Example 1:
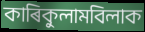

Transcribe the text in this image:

কাৰিকুলামবিলাক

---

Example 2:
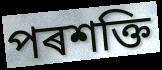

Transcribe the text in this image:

পৰশক্তি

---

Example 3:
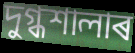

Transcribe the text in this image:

দুগ্ধশালাৰ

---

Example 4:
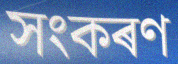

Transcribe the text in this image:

সংকৰণ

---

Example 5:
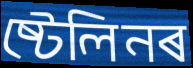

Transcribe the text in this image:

ষ্টেলিনৰ